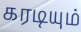
கரடியும்